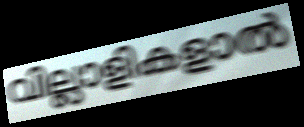
വില്ലാളികളാൽ